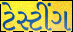
ટેસ્ટીંગ